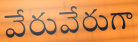
వేరువేరుగా